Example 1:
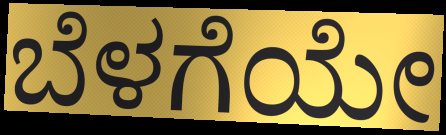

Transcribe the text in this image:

ಬೆಳಗೆಯೇ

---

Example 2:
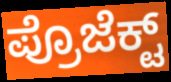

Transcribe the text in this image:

ಪ್ರೊಜೆಕ್ಟ್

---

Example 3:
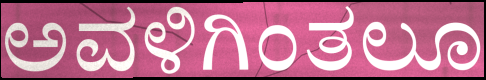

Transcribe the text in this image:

ಅವಳಿಗಿಂತಲೂ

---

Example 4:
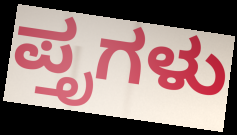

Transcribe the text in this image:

ಪ್ತೃಗಳು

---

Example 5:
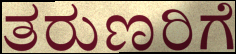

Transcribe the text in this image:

ತರುಣರಿಗೆ